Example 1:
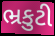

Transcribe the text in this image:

ભ્રકુટી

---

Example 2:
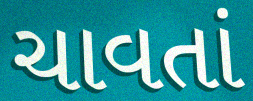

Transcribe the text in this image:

ચાવતાં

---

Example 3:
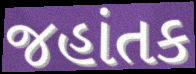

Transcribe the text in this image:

જહાંતક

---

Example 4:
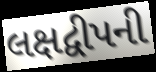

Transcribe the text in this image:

લક્ષદ્વીપની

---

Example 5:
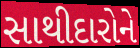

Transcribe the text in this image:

સાથીદારોને